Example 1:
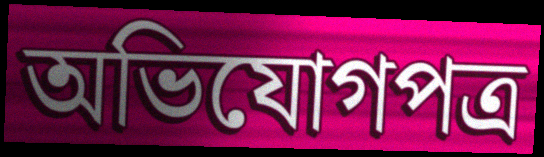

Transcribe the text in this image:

অভিযোগপত্র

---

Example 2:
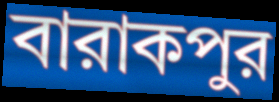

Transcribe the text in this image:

বারাকপুর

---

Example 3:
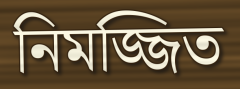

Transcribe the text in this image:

নিমজ্জিত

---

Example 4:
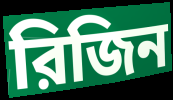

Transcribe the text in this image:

রিজিন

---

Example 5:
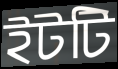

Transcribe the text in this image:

ইটটি